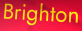
Brighton